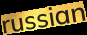
russian